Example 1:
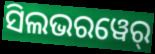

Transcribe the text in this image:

ସିଲଭରୱେର୍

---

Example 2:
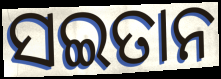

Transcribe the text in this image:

ସଇତାନ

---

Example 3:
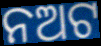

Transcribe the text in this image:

ନଅଟ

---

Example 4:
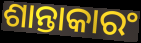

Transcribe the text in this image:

ଶାନ୍ତାକାରଂ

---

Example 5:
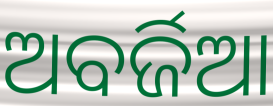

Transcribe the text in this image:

ଅବର୍ଜିଆ